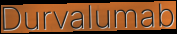
Durvalumab